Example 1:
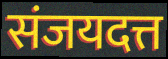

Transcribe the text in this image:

संजयदत्त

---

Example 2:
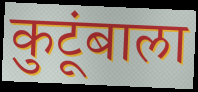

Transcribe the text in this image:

कुटूंबाला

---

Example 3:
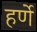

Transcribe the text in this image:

हर्णे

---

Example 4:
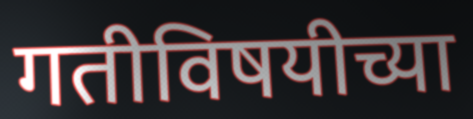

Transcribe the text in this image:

गतीविषयीच्या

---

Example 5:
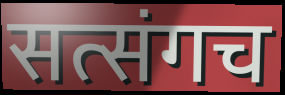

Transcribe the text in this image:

सत्संगच